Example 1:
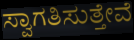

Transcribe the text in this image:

ಸ್ವಾಗತಿಸುತ್ತೇವೆ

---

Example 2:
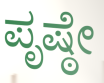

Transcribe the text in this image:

ಪೃಷ್ಠೇ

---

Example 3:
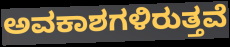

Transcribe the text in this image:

ಅವಕಾಶಗಳಿರುತ್ತವೆ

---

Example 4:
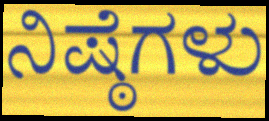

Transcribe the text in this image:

ನಿಷ್ಠೆಗಳು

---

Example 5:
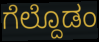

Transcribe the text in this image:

ಗೆಲ್ದೊಡಂ